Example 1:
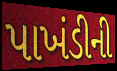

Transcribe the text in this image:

પાખંડીની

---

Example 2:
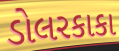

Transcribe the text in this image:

ડોલરકાકા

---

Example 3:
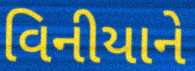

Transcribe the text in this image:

વિનીયાને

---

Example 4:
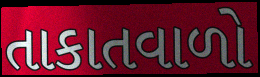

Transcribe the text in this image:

તાકાતવાળો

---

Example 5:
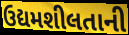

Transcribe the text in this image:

ઉદ્યમશીલતાની